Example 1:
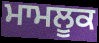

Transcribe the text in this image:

ਮਾਮਲੂਕ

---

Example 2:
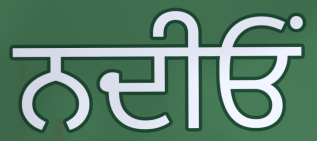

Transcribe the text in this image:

ਨਦੀਓਂ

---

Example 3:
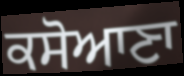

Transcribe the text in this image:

ਕਸੋਆਣਾ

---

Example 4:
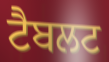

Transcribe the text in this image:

ਟੈਬਲਟ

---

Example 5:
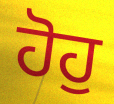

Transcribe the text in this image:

ਹੋਹੁ